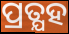
ପ୍ରତ୍ଯହ